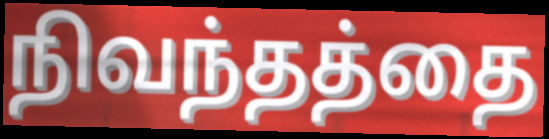
நிவந்தத்தை